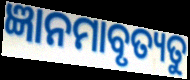
ଜ୍ଞାନମାବୃତ୍ୟତୁ